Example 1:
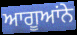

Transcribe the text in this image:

ਆਗੂਆਂਨੇ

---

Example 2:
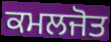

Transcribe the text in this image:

ਕਮਲਜੋਤ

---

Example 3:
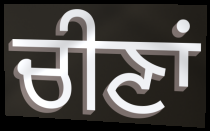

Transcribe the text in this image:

ਚੀਣਾਂ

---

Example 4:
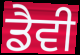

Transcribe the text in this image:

ਡੈਵੀ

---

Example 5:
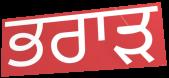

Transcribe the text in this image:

ਭਰਾੜ